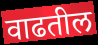
वाढतील